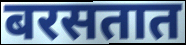
बरसतात